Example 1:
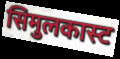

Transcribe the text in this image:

सिमुलकास्ट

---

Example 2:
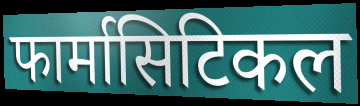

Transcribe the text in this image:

फार्मासिटिकल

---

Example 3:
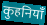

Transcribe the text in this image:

कुहनियाँ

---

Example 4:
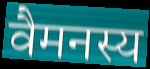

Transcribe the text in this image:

वैमनस्य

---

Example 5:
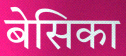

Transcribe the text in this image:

बेसिका